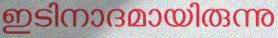
ഇടിനാദമായിരുന്നു